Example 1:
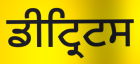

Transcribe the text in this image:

ਡੀਟ੍ਰਿਟਸ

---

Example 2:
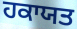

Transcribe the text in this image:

ਹਕਾਯਤ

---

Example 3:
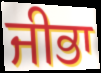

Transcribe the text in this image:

ਜੀਭਾ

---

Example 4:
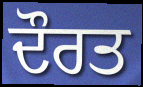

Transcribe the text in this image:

ਦੌਰਤ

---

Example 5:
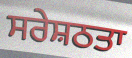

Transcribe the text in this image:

ਸਰੇਸ਼ਠਤਾ